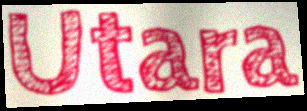
Utara